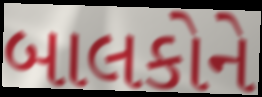
બાલકોને